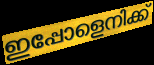
ഇപ്പോളെനിക്ക്